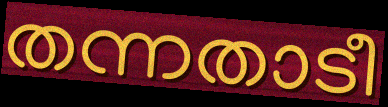
തന്നതാടീ